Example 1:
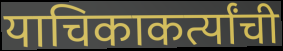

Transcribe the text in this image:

याचिकाकर्त्यांची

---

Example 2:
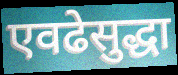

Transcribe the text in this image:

एवढेसुद्धा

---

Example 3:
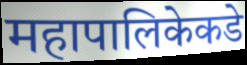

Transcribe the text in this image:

महापालिकेकडे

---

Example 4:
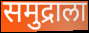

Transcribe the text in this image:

समुद्राला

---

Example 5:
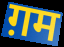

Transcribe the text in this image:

ग़म